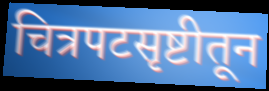
चित्रपटसृष्टीतून